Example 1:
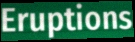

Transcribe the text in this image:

Eruptions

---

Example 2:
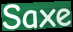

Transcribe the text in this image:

Saxe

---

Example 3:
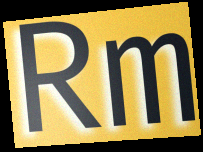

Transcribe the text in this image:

Rm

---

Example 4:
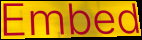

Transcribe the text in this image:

Embed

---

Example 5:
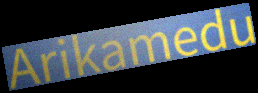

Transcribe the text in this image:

Arikamedu